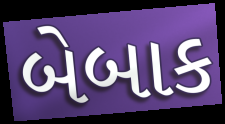
બેબાક